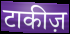
टाकीज़